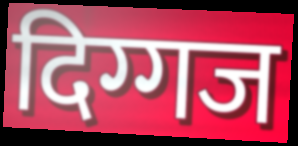
दिग्गज